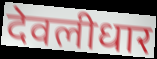
देवलीधार